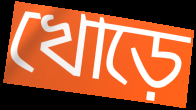
খোড়ে